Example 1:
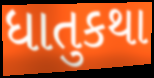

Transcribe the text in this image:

ધાતુકથા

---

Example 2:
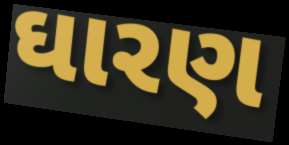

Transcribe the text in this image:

ઘારણ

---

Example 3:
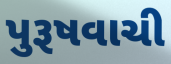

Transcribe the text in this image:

પુરૂષવાચી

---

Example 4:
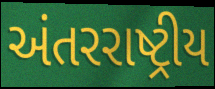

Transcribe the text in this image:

અંતરરાષ્ટ્રીય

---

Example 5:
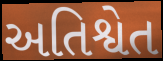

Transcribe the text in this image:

અતિશ્વેત